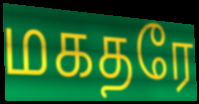
மகதரே